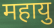
महायु